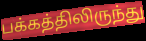
பக்கத்திலிருந்து